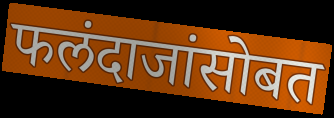
फलंदाजांसोबत